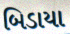
બિડાયા